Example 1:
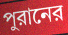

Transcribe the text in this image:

পুরানের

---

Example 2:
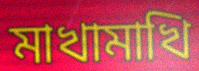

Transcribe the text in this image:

মাখামাখি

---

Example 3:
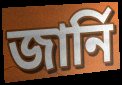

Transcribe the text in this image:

জার্নি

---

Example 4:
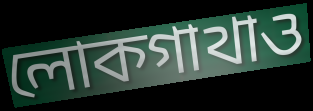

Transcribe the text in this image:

লোকগাথাও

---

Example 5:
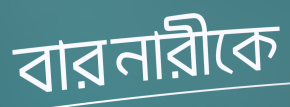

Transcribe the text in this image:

বারনারীকে